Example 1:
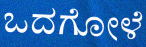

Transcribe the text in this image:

ಒದಗೋಳೆ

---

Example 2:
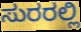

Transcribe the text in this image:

ಸುರರಲ್ಲಿ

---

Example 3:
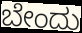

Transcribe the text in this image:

ಬೇಂದು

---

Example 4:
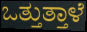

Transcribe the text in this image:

ಒತ್ತುತ್ತಾಳೆ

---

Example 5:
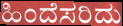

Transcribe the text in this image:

ಹಿಂದೆಸರಿದು